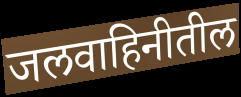
जलवाहिनीतील